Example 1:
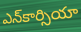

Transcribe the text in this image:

ఎన్‌కార్సియా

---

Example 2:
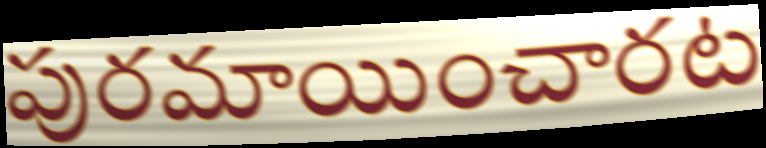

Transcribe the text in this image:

పురమాయించారట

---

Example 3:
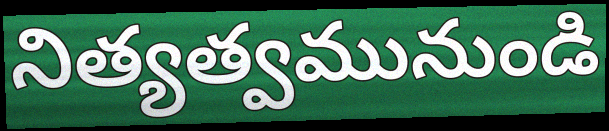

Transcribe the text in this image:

నిత్యత్వమునుండి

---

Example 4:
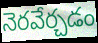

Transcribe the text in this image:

నెరవేర్చడం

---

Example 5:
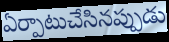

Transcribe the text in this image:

ఏర్పాటుచేసినప్పుడు